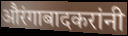
औरंगाबादकरांनी